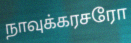
நாவுக்கரசரோ